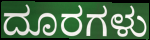
ದೂರಗಳು